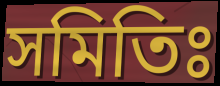
সমিতিঃ